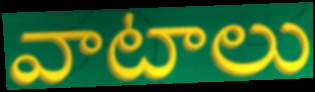
వాటాలు